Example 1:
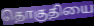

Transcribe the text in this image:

தொகுதியை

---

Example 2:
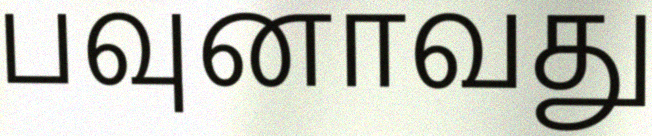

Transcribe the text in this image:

பவுனாவது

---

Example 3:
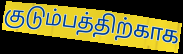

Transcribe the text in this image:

குடும்பத்திற்காக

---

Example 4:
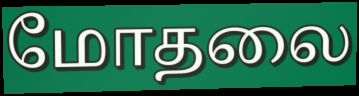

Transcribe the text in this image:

மோதலை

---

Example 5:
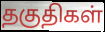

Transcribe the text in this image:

தகுதிகள்